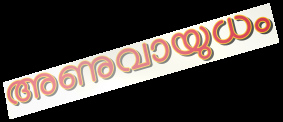
അണുവായുധം